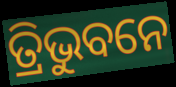
ତ୍ରିଭୁବନେ